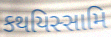
કથયિસ્સામિ